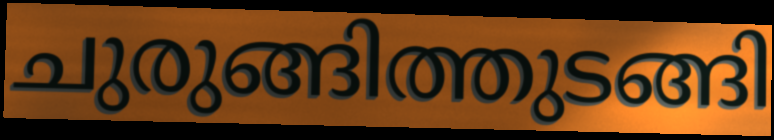
ചുരുങ്ങിത്തുടങ്ങി